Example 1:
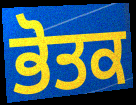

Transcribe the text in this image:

ਭੋਤਕ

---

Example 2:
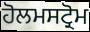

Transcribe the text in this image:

ਹੋਲਮਸਟ੍ਰੋਮ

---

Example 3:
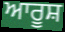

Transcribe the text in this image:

ਆਰੂਸ਼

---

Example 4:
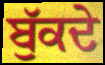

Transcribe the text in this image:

ਬੁੱਕਦੇ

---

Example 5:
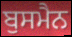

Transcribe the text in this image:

ਬੁਸਮੈਨ